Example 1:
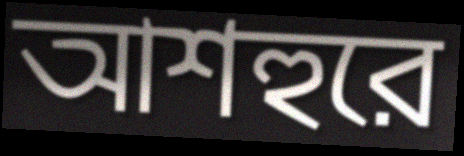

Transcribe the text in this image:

আশহুরে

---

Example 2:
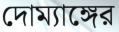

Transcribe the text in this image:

দোম্যাঙ্গের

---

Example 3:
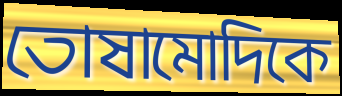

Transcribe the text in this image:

তোষামোদিকে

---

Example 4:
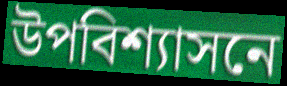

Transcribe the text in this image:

উপবিশ্যাসনে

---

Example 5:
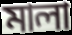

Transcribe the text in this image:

মালা